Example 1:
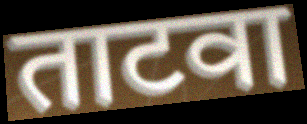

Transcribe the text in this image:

ताटवा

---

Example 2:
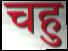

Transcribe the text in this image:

चहु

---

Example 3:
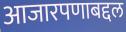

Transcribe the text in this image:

आजारपणाबद्दल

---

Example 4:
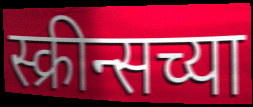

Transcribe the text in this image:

स्क्रीन्सच्या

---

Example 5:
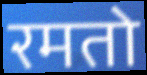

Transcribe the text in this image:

रमतो